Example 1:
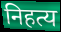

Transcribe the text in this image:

निहत्य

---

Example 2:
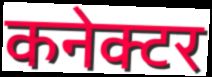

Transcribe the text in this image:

कनेक्टर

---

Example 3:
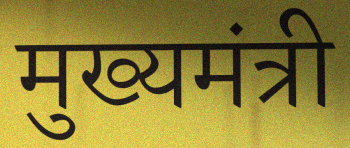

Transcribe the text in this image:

मुख्यमंत्री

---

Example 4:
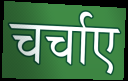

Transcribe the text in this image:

चर्चाए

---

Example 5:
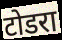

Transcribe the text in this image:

टोडरा